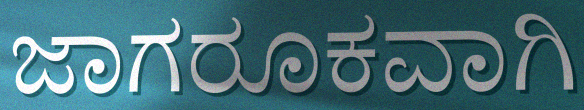
ಜಾಗರೂಕವಾಗಿ